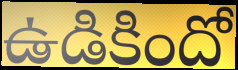
ఉడికిందో